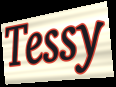
Tessy